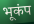
भूकंप